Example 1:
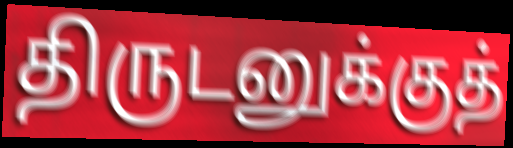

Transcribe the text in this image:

திருடனுக்குத்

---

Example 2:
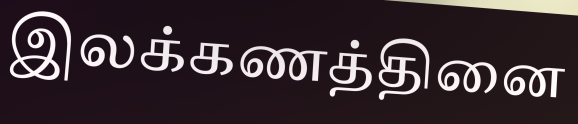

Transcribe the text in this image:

இலக்கணத்தினை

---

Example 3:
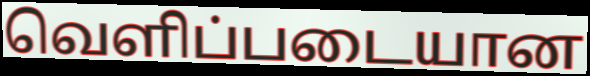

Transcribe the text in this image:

வெளிப்படையான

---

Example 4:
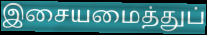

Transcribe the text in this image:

இசையமைத்துப்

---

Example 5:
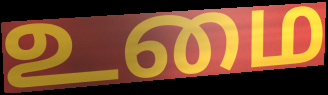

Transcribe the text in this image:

உமை